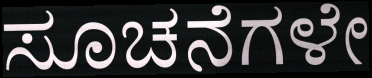
ಸೂಚನೆಗಳೇ